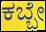
ಕಬ್ಬೇ